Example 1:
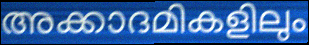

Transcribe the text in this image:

അക്കാദമികളിലും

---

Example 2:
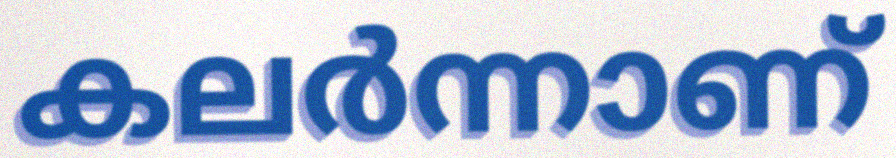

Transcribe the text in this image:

കലർന്നാണ്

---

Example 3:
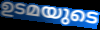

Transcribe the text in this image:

ഉടമയുടെ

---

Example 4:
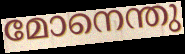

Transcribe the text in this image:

മോനെന്തു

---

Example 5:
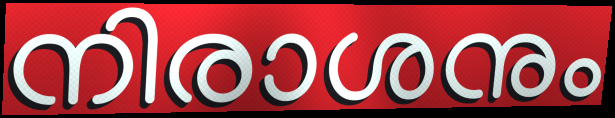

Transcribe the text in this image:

നിരാശനും